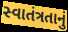
સ્વાતંત્રતાનું